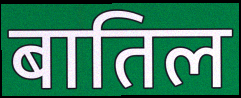
बातिल